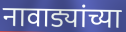
नावाड्यांच्या